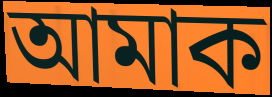
আমাক